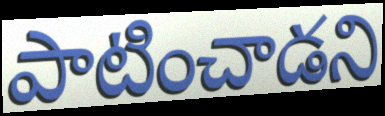
పాటించాడని